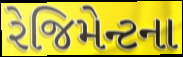
રેજિમેન્ટના